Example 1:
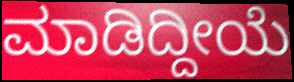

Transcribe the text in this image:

ಮಾಡಿದ್ದೀಯೆ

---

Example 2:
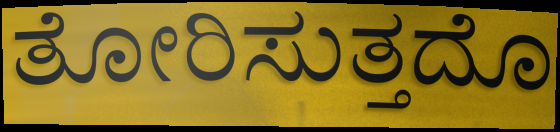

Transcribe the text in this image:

ತೋರಿಸುತ್ತದೊ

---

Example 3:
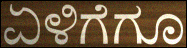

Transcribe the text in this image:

ಏಳಿಗೆಗೂ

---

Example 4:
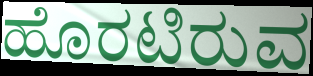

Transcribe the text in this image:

ಹೊರಟಿರುವ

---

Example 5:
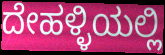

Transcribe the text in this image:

ದೇಹಳ್ಳಿಯಲ್ಲಿ